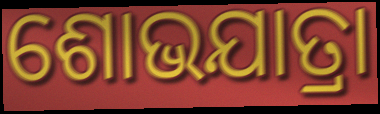
ଶୋଭଯାତ୍ରା